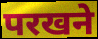
परखने